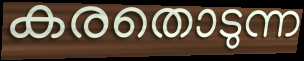
കരതൊടുന്ന